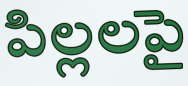
పిల్లలపై